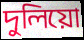
দুলিয়ো